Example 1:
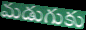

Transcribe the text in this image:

మడుగుకు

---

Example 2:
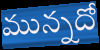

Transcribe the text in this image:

మున్నదో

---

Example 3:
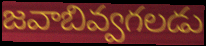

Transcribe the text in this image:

జవాబివ్వగలడు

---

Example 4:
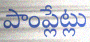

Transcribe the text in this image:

పాంప్లేట్లు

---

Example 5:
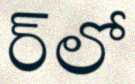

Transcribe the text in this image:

ర్‌లో